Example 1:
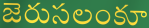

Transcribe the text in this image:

జెరుసలంకూ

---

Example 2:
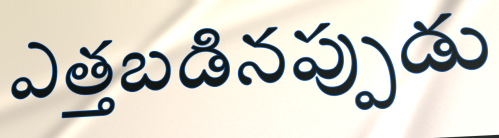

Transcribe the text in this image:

ఎత్తబడినప్పుడు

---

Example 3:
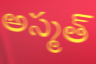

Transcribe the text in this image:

అస్మత్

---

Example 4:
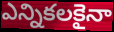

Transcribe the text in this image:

ఎన్నికలకైనా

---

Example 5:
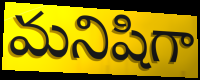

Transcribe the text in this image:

మనిషిగా